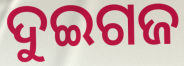
ଦୁଇଗଜ